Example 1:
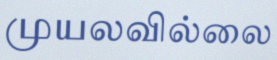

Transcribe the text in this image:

முயலவில்லை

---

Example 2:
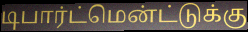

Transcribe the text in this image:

டிபார்ட்மென்ட்டுக்கு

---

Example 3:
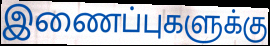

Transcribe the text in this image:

இணைப்புகளுக்கு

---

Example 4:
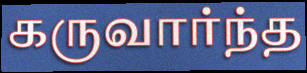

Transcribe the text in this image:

கருவார்ந்த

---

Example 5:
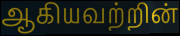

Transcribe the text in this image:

ஆகியவற்றின்